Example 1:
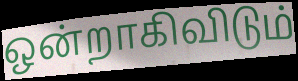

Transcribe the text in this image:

ஒன்றாகிவிடும்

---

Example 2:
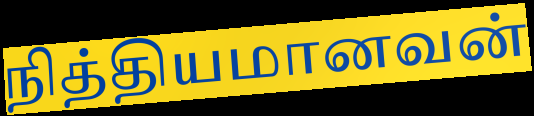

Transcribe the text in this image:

நித்தியமானவன்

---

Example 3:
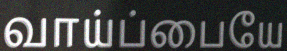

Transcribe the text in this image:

வாய்ப்பையே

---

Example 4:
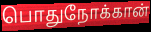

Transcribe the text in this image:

பொதுநோக்கான்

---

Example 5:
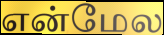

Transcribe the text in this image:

என்மேல